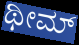
ಥೀಮ್